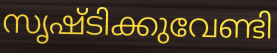
സൃഷ്ടിക്കുവേണ്ടി